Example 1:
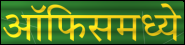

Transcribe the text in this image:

ऑफिसमध्ये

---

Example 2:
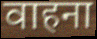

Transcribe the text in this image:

वाहना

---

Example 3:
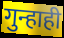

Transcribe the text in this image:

गुन्हाही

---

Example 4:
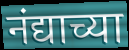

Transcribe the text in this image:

नंद्याच्या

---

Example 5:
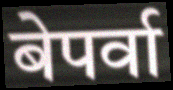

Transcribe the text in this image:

बेपर्वा